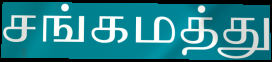
சங்கமத்து